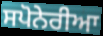
ਸਪੋਨੇਰੀਆ